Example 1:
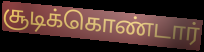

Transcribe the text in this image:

சூடிக்கொண்டார்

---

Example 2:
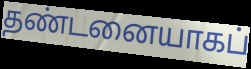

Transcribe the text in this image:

தண்டனையாகப்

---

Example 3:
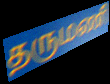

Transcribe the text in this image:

தருமணி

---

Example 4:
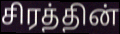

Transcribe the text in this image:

சிரத்தின்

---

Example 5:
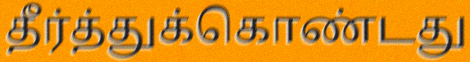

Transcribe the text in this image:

தீர்த்துக்கொண்டது